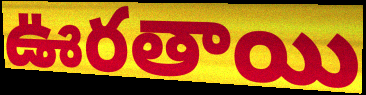
ఊరతాయి